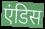
एंडिस